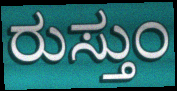
ರುಸ್ತುಂ